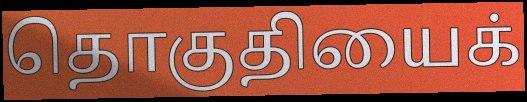
தொகுதியைக்